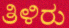
ತಿಳಿರು